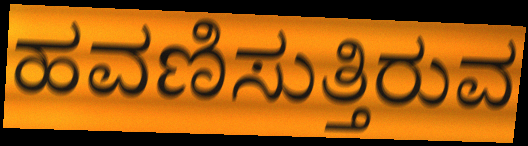
ಹವಣಿಸುತ್ತಿರುವ